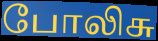
போலிசு